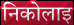
निकोलाइ